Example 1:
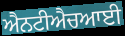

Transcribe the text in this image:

ਐਨਟੀਐਚਆਈ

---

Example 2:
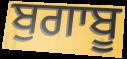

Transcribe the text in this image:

ਬੁਗਾਬੂ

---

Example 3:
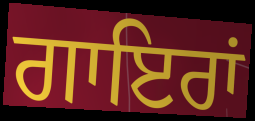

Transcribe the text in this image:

ਗਾਇਰਾਂ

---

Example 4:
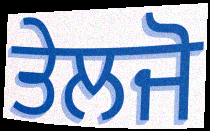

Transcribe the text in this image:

ਤੇਲਜੋ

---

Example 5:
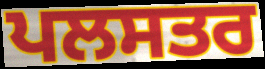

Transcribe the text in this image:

ਪਲਸਤਰ